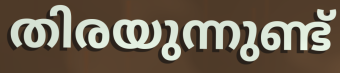
തിരയുന്നുണ്ട്